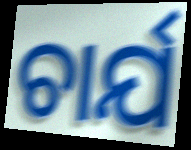
ଚାର୍ଯ